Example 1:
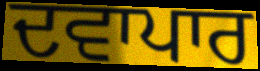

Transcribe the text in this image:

ਦਵਾਪਾਰ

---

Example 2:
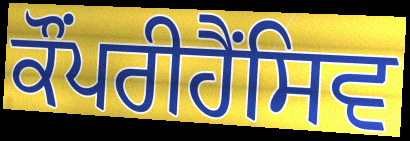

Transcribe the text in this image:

ਕੌਂਪਰੀਹੈਂਸਿਵ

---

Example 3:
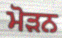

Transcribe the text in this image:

ਮੋੜਨ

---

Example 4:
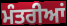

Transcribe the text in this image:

ਮੰਤਰੀਆਂ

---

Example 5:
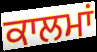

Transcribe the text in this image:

ਕਾਲਮਾਂ